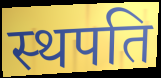
स्थपति